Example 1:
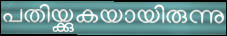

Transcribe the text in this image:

പതിയ്ക്കുകയായിരുന്നു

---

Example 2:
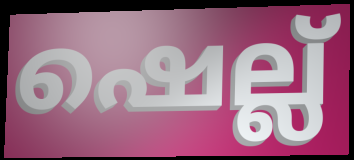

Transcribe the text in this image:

ഷെല്ല്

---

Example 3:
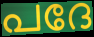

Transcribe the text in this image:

പദേ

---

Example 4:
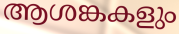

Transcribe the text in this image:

ആശങ്കകളും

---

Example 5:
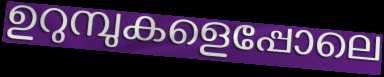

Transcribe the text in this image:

ഉറുമ്പുകളെപ്പോലെ